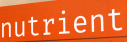
nutrient